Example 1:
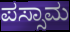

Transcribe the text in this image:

ಪಸ್ಸಾಮ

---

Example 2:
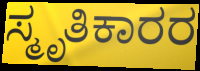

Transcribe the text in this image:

ಸ್ಮೃತಿಕಾರರ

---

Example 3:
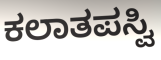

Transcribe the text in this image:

ಕಲಾತಪಸ್ವಿ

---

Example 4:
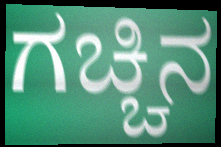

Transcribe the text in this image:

ಗಚ್ಚಿನ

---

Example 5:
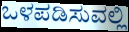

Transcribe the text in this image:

ಒಳಪಡಿಸುವಲ್ಲಿ